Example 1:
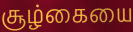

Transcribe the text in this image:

சூழ்கையை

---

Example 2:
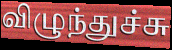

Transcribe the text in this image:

விழுந்துச்சு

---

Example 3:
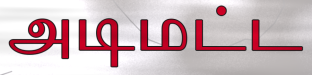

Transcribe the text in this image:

அடிமட்ட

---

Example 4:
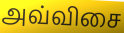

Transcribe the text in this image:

அவ்விசை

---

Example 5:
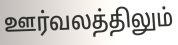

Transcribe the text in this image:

ஊர்வலத்திலும்